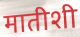
मातीशी